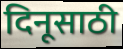
दिनूसाठी